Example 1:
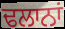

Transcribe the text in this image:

ਢਲਾਨਾਂ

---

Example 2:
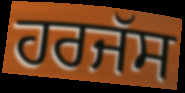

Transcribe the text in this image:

ਹਰਜੱਸ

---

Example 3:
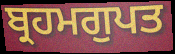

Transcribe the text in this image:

ਬ੍ਰਹਮਗੁਪਤ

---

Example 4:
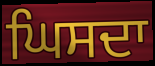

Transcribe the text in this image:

ਘਿਸਦਾ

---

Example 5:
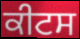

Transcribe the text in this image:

ਕੀਟਸ